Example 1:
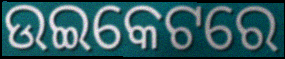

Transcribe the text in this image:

ଉଇକେଟରେ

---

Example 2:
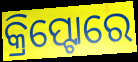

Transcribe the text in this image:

କ୍ରିପ୍ଟୋରେ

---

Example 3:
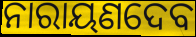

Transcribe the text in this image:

ନାରାୟଣଦେବ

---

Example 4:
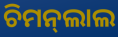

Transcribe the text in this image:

ଚିମନ୍‍ଲାଲ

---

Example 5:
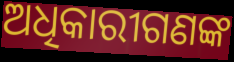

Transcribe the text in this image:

ଅଧିକାରୀଗଣଙ୍କ